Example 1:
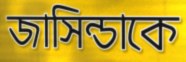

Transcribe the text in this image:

জাসিন্ডাকে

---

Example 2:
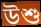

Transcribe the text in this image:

উশু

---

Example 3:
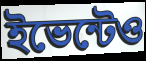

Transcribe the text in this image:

ইভেন্টেও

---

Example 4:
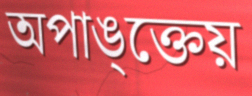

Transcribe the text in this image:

অপাঙ্‌ক্তেয়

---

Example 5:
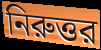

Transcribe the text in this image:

নিরুত্তর